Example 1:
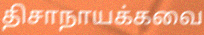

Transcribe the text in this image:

திசாநாயக்கவை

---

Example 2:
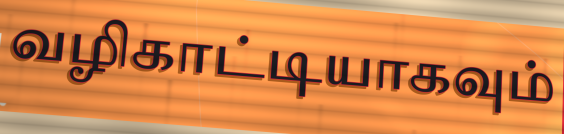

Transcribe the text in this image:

வழிகாட்டியாகவும்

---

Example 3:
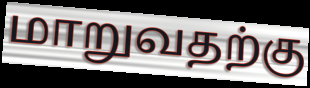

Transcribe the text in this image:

மாறுவதற்கு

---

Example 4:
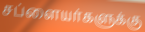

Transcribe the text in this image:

சப்ளையர்களுக்கு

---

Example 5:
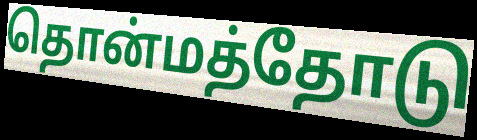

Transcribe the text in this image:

தொன்மத்தோடு